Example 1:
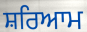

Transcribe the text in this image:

ਸ਼ਰਿਆਮ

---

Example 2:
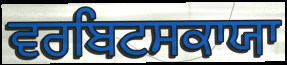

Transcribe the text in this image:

ਵਰਬਿਟਸਕਾਯਾ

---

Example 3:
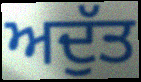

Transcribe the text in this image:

ਅਦੁੱਤ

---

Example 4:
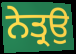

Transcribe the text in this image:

ਨੇਤ੍ਰਉ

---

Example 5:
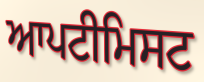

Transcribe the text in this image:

ਆਪਟੀਮਿਸਟ